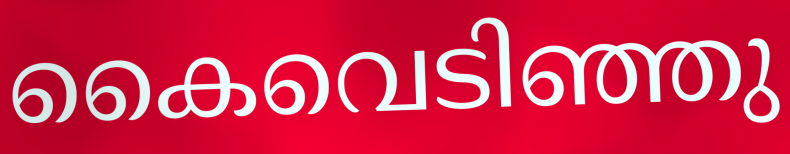
കൈവെടിഞ്ഞു